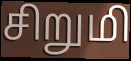
சிறுமி